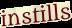
instills